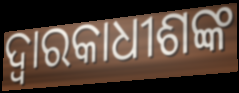
ଦ୍ୱାରକାଧୀଶଙ୍କ